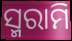
ସ୍ମରାମି